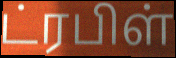
ட்ரபிள்